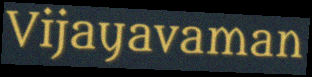
Vijayavaman